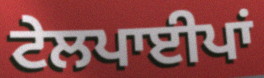
ਟੇਲਪਾਈਪਾਂ